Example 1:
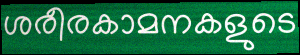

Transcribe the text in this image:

ശരീരകാമനകളുടെ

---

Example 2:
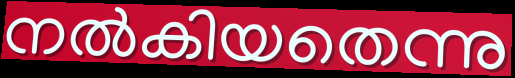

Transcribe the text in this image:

നൽകിയതെന്നു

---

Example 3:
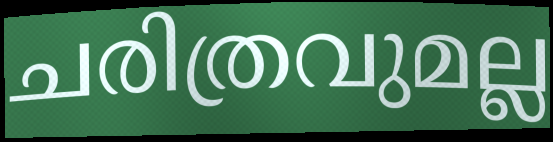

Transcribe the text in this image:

ചരിത്രവുമല്ല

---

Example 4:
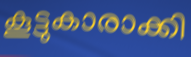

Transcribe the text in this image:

കൂട്ടുകാരാക്കി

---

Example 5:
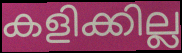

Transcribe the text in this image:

കളിക്കില്ല